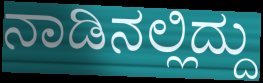
ನಾಡಿನಲ್ಲಿದ್ದು